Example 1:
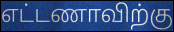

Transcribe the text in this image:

எட்டணாவிற்கு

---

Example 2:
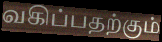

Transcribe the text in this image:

வகிப்பதற்கும்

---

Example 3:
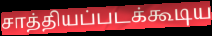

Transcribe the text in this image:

சாத்தியப்படக்கூடிய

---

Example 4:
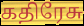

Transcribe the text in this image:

கதிரேசு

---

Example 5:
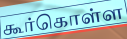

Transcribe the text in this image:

கூர்கொள்ள